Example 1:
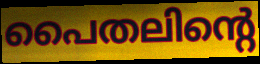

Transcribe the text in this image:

പൈതലിന്റെ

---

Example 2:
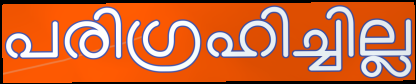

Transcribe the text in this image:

പരിഗ്രഹിച്ചില്ല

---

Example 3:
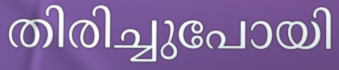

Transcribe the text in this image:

തിരിച്ചുപോയി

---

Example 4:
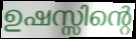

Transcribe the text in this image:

ഉഷസ്സിന്റെ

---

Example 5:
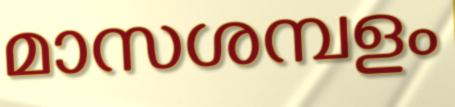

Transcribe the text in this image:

മാസശമ്പളം